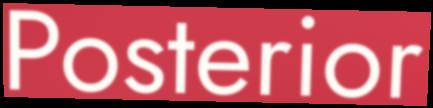
Posterior